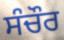
ਸੰਚੌਰ